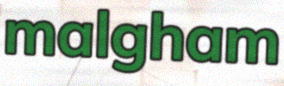
malgham